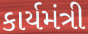
કાર્યમંત્રી